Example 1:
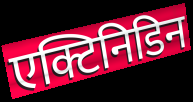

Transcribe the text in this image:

एक्टिनिडिन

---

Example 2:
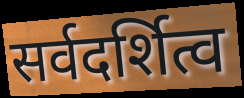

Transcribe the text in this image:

सर्वदर्शित्व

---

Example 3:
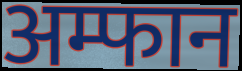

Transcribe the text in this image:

अम्‍फान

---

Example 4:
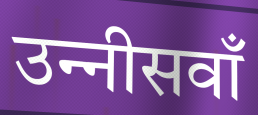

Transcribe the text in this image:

उन्‍नीसवाँ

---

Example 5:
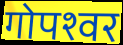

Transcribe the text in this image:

गोपश्वर